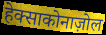
हेक्साकोनाज़ोल